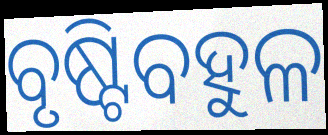
ବୃଷ୍ଟିବହୁଳ